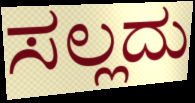
ಸಲ್ಲದು